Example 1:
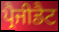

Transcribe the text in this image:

ਪ੍ਰੈਜੀਡੈਟ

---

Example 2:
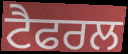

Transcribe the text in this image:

ਟੈਫਰਲ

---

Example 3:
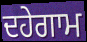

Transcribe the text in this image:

ਦਹੇਗਾਮ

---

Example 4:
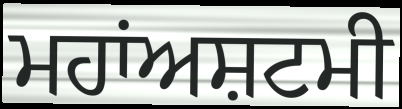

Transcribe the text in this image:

ਮਹਾਂਅਸ਼ਟਮੀ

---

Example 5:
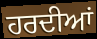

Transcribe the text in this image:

ਹਰਦੀਆਂ